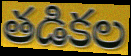
తడికల